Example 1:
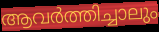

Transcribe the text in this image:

ആവർത്തിച്ചാലും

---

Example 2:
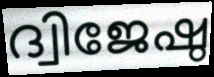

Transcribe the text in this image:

ദ്വിജേഷു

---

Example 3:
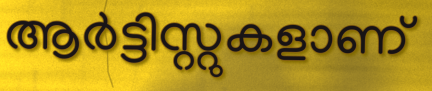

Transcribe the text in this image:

ആർട്ടിസ്റ്റുകളാണ്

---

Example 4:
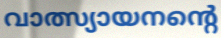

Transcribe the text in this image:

വാത്സ്യായനന്റെ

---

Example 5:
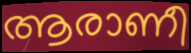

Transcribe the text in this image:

ആരാണീ